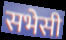
सभेसी